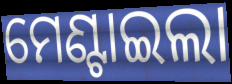
ମେଣ୍ଟାଇଲା